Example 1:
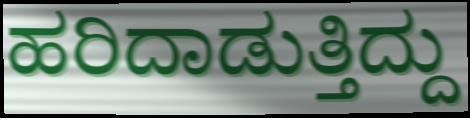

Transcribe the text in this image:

ಹರಿದಾಡುತ್ತಿದ್ದು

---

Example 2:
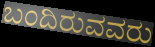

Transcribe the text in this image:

ಬಂದಿರುವವರು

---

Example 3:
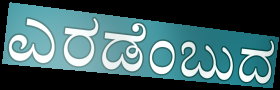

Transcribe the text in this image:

ಎರಡೆಂಬುದ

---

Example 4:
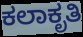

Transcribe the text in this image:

ಕಲಾಕೃತಿ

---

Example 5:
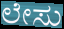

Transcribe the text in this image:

ಲೇಸು